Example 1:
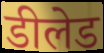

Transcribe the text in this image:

डीलेड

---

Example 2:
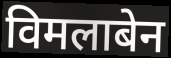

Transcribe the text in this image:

विमलाबेन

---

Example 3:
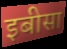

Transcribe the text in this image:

इबीसा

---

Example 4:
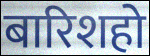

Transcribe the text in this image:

बारिशहो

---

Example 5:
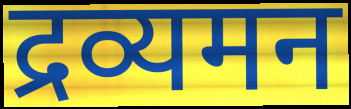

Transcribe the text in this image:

द्रव्यमन